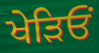
ਖੇੜਿਓਂ